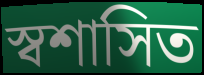
স্বশাসিত